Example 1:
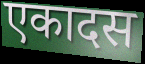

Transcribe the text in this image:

एकादस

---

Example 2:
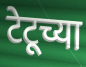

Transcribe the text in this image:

टेटूच्या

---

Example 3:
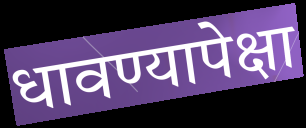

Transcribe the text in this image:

धावण्यापेक्षा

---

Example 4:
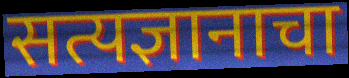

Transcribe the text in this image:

सत्यज्ञानाचा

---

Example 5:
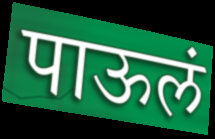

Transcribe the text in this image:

पाऊलं